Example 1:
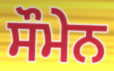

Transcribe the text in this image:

ਸੌਮੇਨ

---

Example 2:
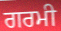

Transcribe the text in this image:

ਗਰਮੀ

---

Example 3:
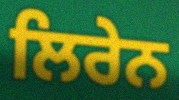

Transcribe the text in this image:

ਲਿਰੇਨ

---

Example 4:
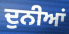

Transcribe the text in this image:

ਦੁਨੀਆਂ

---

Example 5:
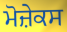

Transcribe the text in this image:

ਮੋਜ਼ੇਕਸ